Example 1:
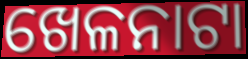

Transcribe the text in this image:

ଖେଳନାଟା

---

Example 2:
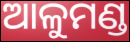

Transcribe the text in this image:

ଆଳୁମଣ୍ଡ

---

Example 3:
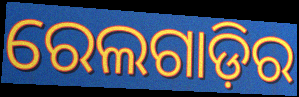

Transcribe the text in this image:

ରେଲଗାଡ଼ିର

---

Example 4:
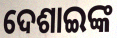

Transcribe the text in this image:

ଦେଶାଇଙ୍କ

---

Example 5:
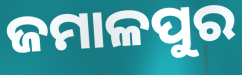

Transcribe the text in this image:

ଜମାଳପୁର